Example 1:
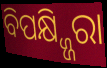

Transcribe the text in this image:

ବିପକ୍ଷ୍ଜ୍ଜିରା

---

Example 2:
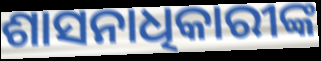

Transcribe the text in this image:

ଶାସନାଧିକାରୀଙ୍କ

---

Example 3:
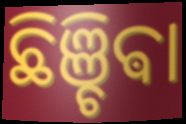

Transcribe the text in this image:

ଛିଞ୍ଚିଵା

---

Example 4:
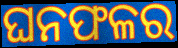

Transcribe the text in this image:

ଘନଫଳର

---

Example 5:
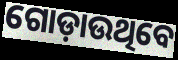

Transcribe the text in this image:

ଗୋଡ଼ାଉଥିବେ